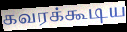
கவரக்கூடிய